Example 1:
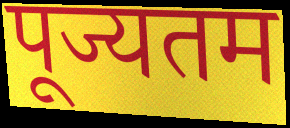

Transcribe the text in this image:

पूज्यतम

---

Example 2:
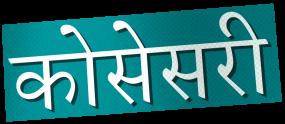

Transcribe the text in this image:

कोसेसरी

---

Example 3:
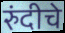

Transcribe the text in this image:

रुंदीचे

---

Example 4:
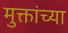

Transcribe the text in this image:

मुक्तांच्या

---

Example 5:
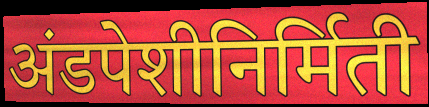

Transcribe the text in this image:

अंडपेशीनिर्मिती